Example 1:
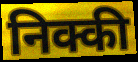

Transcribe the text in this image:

निक्की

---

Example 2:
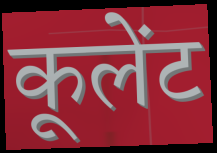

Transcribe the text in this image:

कूलेंट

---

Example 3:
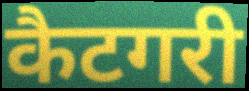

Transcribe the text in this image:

कैटगरी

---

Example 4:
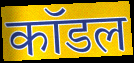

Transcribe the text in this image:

कॉडल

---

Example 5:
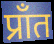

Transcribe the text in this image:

प्राँत